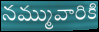
నమ్మువారికి